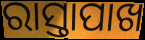
ରାସ୍ତାପାଖ